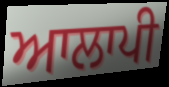
ਆਲਾਪੀ